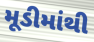
મૂડીમાંથી